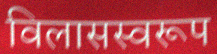
विलासस्वरूप